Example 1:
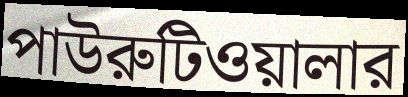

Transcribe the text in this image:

পাউরুটিওয়ালার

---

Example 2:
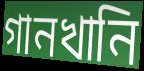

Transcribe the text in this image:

গানখানি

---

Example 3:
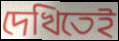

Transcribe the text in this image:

দেখিতেই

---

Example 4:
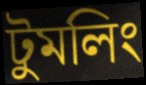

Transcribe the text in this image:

টুমলিং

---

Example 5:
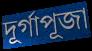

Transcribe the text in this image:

দূর্গাপূজা